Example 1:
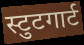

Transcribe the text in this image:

स्टुटगार्ट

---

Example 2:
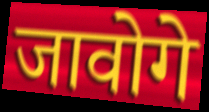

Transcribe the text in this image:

जावोगे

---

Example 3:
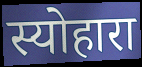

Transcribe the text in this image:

स्योहारा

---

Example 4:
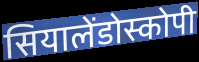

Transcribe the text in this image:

सियालेंडोस्कोपी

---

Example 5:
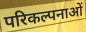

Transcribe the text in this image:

परिकल्पनाओं